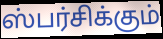
ஸ்பர்சிக்கும்